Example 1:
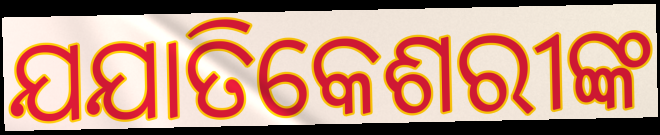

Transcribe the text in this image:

ଯଯାତିକେଶରୀଙ୍କ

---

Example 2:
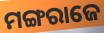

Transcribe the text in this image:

ମଙ୍ଗରାଜେ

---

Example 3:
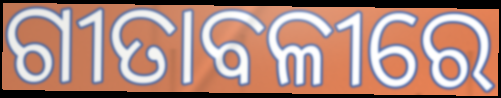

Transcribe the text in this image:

ଗୀତାବଳୀରେ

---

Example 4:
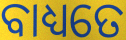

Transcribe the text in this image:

ବାଧ୍ଯତେ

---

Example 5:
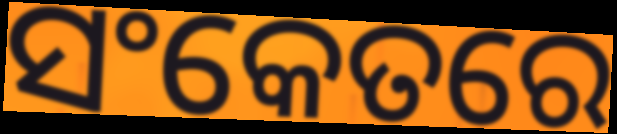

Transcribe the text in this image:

ସଂକେତରେ